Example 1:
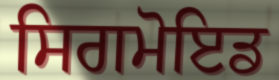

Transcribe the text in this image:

ਸਿਗਮੋਇਡ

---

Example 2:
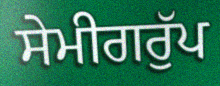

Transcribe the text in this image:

ਸੇਮੀਗਰੁੱਪ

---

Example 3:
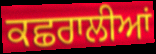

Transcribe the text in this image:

ਕਛਰਾਲੀਆਂ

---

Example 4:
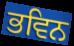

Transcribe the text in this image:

ਭਵਿਨ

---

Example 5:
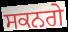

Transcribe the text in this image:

ਸਕਨਗੇ